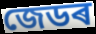
জেডৰ